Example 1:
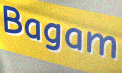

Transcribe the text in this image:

Bagam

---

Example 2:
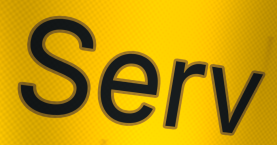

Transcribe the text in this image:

Serv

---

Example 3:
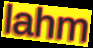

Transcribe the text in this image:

lahm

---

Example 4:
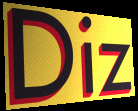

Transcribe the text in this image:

Diz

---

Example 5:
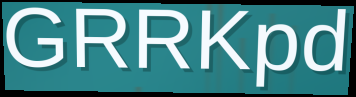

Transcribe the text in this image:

GRRKpd